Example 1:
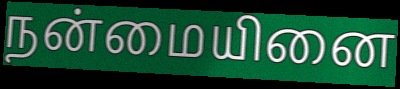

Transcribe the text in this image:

நன்மையினை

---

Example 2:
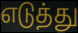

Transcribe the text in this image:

எடுத்து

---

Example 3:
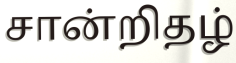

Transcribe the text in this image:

சான்றிதழ்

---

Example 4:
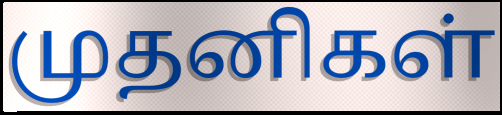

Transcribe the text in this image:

முதனிகள்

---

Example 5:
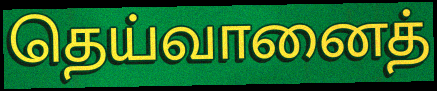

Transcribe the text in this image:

தெய்வானைத்